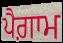
ਪੈਗ਼ਾਮ